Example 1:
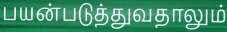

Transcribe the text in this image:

பயன்படுத்துவதாலும்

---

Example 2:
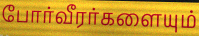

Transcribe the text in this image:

போர்வீரர்களையும்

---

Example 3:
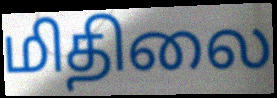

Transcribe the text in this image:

மிதிலை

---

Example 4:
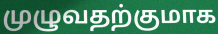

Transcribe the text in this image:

முழுவதற்குமாக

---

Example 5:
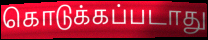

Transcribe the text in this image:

கொடுக்கப்படாது